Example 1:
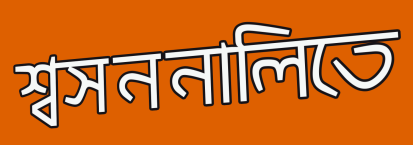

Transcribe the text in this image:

শ্বসননালিতে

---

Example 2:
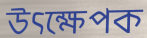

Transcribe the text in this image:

উৎক্ষেপক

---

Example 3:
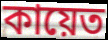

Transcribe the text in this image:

কায়েত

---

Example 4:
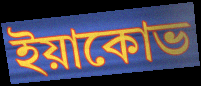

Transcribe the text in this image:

ইয়াকোভ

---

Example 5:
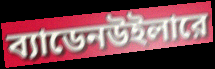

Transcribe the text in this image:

ব্যাডেনউইলারে